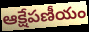
ఆక్షేపణీయం